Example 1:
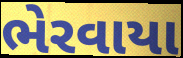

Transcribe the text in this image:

ભેરવાયા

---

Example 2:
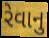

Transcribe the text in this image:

રેવાનુ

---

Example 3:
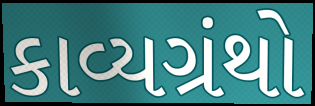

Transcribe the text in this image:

કાવ્યગ્રંથો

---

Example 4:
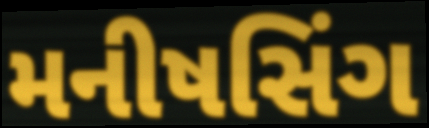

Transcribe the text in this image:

મનીષસિંગ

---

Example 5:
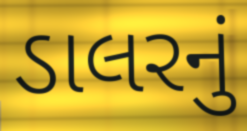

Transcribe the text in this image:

ડાલરનું